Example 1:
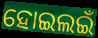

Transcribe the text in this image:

ହୋଇଲଇଁ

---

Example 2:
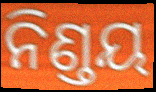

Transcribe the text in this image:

ନିଣ୍ଡୟ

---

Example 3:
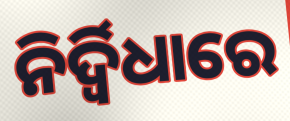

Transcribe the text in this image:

ନିର୍ଦ୍ୱିଧାରେ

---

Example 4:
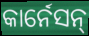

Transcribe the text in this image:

କାର୍ନେସନ୍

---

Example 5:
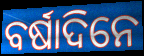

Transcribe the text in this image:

ବର୍ଷାଦିନେ